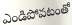
ఎండిపోవటంతో